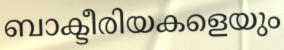
ബാക്ടീരിയകളെയും